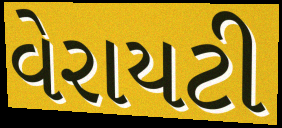
વેરાયટી